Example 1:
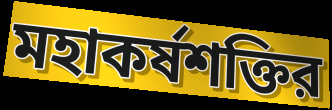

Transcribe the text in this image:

মহাকর্ষশক্তির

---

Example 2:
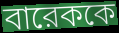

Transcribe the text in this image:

বারেককে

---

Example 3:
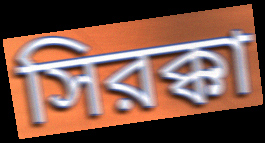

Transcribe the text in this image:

সিরক্কা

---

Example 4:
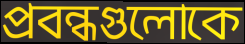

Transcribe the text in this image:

প্রবন্ধগুলোকে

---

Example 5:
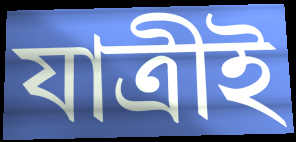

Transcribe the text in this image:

যাত্রীই